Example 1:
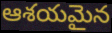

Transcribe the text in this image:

ఆశయమైన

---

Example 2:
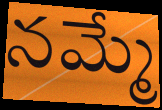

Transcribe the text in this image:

నమ్మే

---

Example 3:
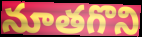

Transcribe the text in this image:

నూతగొని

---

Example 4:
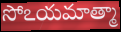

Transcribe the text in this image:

సోఽయమాత్మా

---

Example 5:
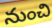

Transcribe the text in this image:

నుంచి